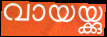
വായയ്ക്കു